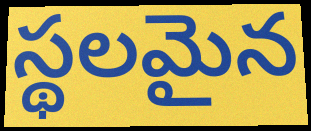
స్థలమైన